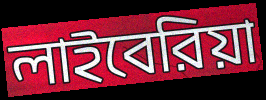
লাইবেরিয়া